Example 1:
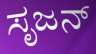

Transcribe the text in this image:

ಸೃಜನ್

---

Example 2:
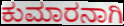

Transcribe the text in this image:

ಕುಮಾರನಾಗಿ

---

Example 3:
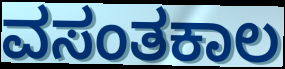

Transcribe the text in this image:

ವಸಂತಕಾಲ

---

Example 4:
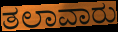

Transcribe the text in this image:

ತಲಾವಾರು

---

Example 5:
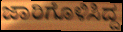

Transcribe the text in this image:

ಜಾರಿಗೊಳಿಸಿದ್ದ